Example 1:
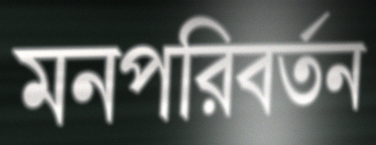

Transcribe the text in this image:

মনপরিবর্তন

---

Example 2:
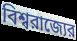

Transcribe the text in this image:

বিশ্বরাজ্যের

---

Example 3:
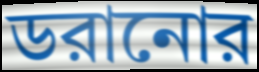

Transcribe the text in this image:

ডরানোর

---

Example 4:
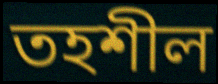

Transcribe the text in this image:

তহশীল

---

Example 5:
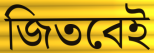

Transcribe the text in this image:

জিতবেই